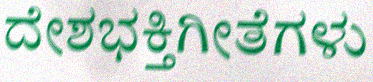
ದೇಶಭಕ್ತಿಗೀತೆಗಳು